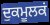
ਦੁਕਮੂਲਕਂ